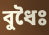
বুধৈঃ